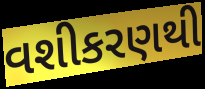
વશીકરણથી